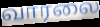
வாரலை